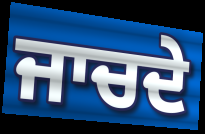
ਜਾਚਦੇ